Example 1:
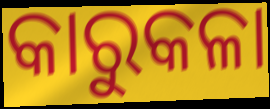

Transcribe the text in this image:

କାରୁକଳା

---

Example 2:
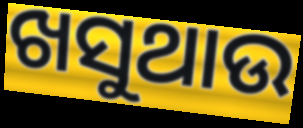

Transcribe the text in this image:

ଖସୁଥାଉ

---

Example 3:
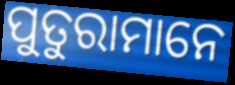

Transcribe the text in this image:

ପୁତୁରାମାନେ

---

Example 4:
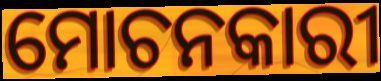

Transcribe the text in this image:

ମୋଚନକାରୀ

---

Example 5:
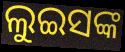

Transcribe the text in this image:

ଲୁଇସଙ୍କ